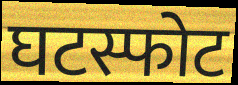
घटस्फोट